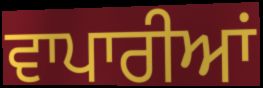
ਵਾਪਾਰੀਆਂ